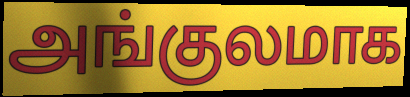
அங்குலமாக